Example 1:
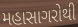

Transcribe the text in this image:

મહાસાગરોથી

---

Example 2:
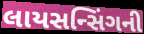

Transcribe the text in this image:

લાયસન્સિંગની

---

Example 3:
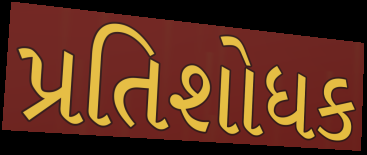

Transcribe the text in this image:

પ્રતિશોધક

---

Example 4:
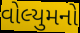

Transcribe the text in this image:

વોલ્યુમનો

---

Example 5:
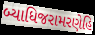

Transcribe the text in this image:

બ્યાધિજરામરણેહિ